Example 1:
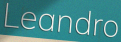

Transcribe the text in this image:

Leandro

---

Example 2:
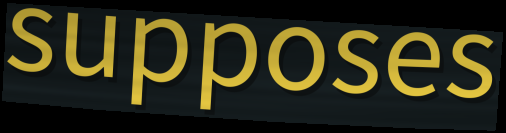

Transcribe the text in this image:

supposes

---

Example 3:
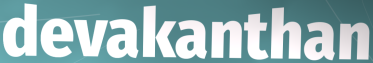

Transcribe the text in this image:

devakanthan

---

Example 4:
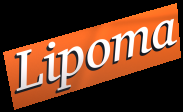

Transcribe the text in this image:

Lipoma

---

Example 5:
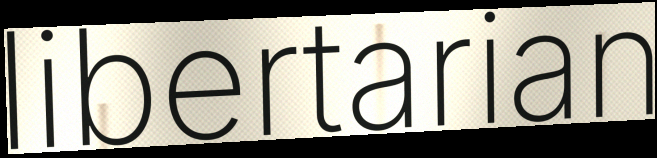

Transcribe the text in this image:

libertarian